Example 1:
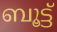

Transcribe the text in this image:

ബൂട്ട്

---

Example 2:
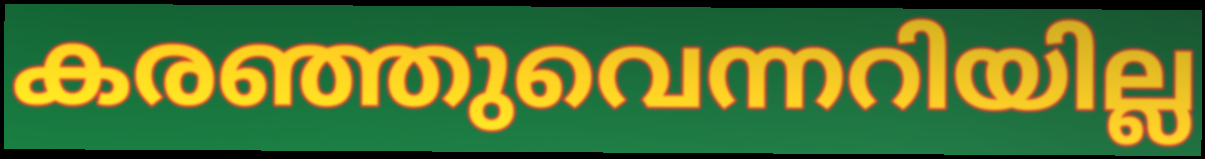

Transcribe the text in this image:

കരഞ്ഞുവെന്നറിയില്ല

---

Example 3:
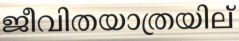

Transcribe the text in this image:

ജീവിതയാത്രയില്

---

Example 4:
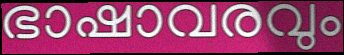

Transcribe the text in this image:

ഭാഷാവരവും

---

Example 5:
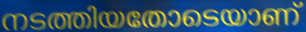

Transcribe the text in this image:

നടത്തിയതോടെയാണ്